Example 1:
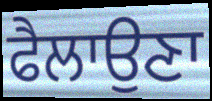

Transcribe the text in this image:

ਫੈਲਾਉਣਾ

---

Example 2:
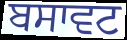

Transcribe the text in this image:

ਬਸਾਵਟ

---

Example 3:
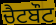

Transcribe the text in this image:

ਚੈਟਬੌਟ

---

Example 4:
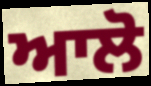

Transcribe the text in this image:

ਆਲੋ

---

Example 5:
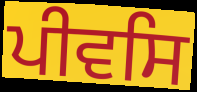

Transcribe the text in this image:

ਪੀਵਸਿ